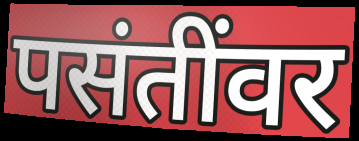
पसंतींवर